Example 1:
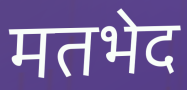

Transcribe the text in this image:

मतभेद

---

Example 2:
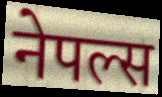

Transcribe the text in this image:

नेपल्स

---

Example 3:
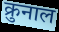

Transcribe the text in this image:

क्रुनाल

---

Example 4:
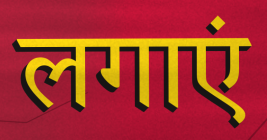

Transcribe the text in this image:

लगाएं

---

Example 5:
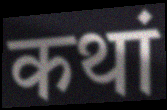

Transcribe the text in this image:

कथां